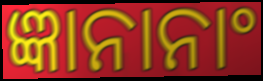
ଜ୍ଞାନାନାଂ